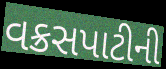
વક્રસપાટીની